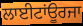
ਲਾਈਟਾਂਊਰਜਾ